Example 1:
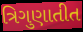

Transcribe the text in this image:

ત્રિગુણાતીત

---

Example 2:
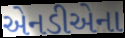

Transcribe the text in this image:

એનડીએના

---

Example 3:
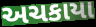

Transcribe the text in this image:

અચકાયા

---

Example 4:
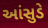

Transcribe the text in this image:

આંસુડે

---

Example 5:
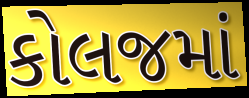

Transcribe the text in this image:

કોલજમાં